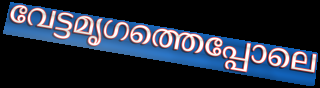
വേട്ടമൃഗത്തെപ്പോലെ